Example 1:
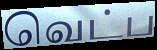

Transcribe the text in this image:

வெட்ப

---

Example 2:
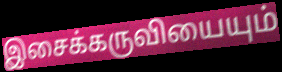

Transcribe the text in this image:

இசைக்கருவியையும்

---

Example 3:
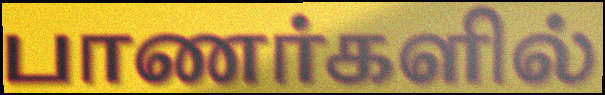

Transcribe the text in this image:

பாணர்களில்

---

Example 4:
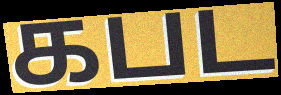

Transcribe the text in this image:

கபட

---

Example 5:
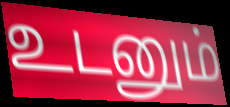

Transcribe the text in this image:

உடனும்